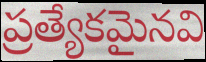
ప్రత్యేకమైనవి